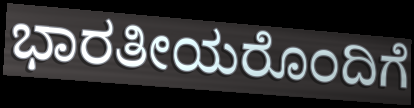
ಭಾರತೀಯರೊಂದಿಗೆ